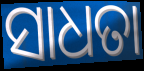
ସାଧତା